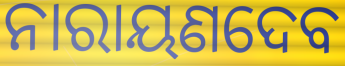
ନାରାୟଣଦେବ